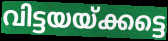
വിട്ടയയ്ക്കട്ടെ